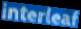
interleaf